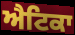
ਐਟਿਕਾ